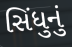
સિંધુનું